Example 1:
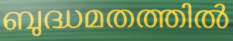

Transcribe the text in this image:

ബുദ്ധമതത്തിൽ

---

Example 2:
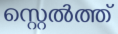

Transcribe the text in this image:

സ്റ്റെൽത്ത്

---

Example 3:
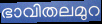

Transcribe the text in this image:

ഭാവിതലമുറ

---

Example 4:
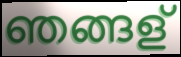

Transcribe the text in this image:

ഞങ്ങള്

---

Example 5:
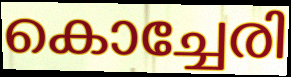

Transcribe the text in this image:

കൊച്ചേരി